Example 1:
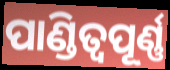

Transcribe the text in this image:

ପାଣ୍ଡିତ୍ୱପୂର୍ଣ୍ଣ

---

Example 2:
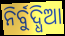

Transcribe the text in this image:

ନିର୍ବୁଦ୍ଧିଆ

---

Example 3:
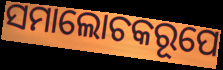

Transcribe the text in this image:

ସମାଲୋଚକରୂପେ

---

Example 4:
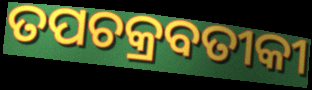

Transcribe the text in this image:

ତପଚକ୍ରବତୀକୀ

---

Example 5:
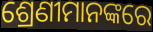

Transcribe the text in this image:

ଶ୍ରେଣୀମାନଙ୍କରେ